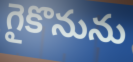
గైకొనును